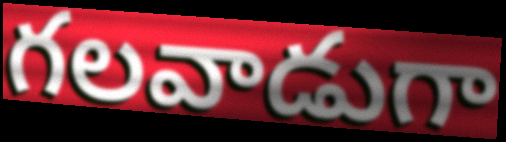
గలవాడుగా